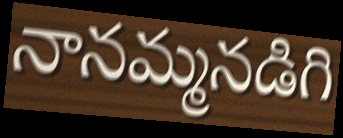
నానమ్మనడిగి